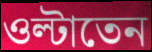
ওল্টাতেন